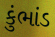
કુંભાંડ